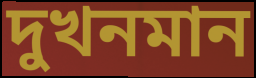
দুখনমান